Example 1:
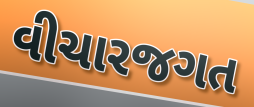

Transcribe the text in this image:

વીચારજગત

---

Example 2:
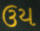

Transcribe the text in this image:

ઉય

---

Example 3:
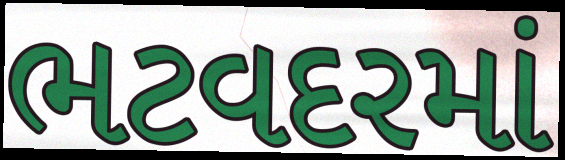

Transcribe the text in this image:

ભટવદરમાં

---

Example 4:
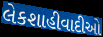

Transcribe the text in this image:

લેકશાહીવાદીઓ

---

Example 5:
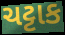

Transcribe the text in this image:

ચટ્ટાક